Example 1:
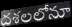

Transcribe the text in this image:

దశలలోనూ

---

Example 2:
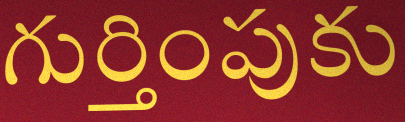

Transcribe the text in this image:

గుర్తింపుకు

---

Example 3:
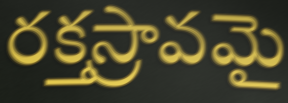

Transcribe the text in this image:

రక్తస్రావమై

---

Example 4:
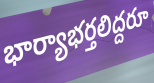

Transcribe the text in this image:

భార్యాభర్తలిద్దరూ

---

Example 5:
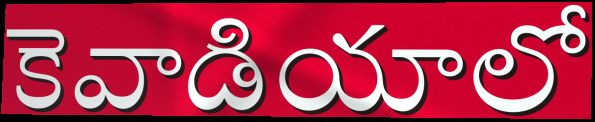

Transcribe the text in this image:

కెవాడియాలో